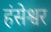
हंसेश्वर